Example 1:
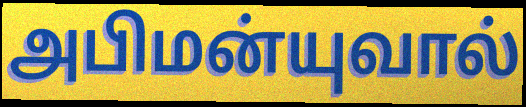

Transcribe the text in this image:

அபிமன்யுவால்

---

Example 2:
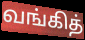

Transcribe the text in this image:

வங்கித்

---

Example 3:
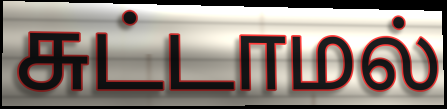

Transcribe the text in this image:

சுட்டாமல்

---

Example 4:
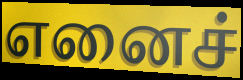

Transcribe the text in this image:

எனைச்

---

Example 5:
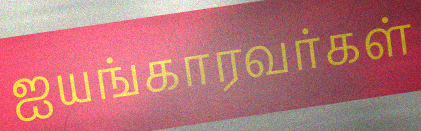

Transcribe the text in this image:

ஐயங்காரவர்கள்